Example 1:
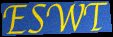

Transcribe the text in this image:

ESWT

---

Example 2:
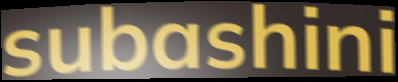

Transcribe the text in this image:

subashini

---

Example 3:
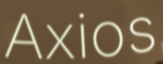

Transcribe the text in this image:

Axios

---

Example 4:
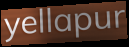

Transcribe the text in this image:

yellapur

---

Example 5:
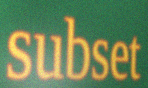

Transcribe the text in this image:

subset